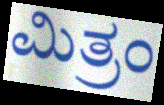
ಮಿತ್ರಂ